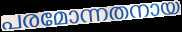
പരമോന്നതനായ